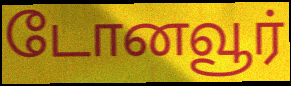
டோனவூர்